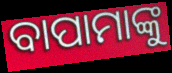
ବାପାମାଙ୍କୁ